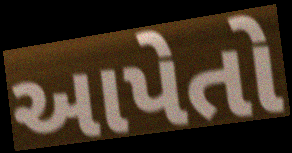
આપેતો